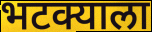
भटक्याला